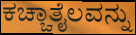
ಕಚ್ಚಾತೈಲವನ್ನು